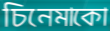
চিনেমাকো